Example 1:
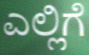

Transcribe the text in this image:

ಎಲ್ಲಿಗೆ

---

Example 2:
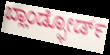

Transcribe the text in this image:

ಬ್ಲಾಂಡ್ಫೋರ್ಡ್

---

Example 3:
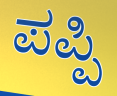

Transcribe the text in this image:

ಪಪ್ಪಿ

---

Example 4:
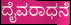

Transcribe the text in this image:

ದೈವರಾಧನೆ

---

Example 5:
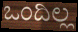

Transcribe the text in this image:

ಒಂದಿಲ್ಲ